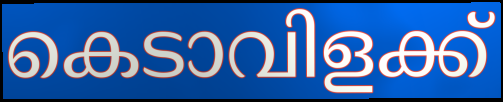
കെടാവിളക്ക്